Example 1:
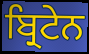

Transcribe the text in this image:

ਬ੍ਰਿਟੇਨ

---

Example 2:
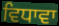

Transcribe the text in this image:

ਵਿਧਾਵਾ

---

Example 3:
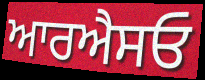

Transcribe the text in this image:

ਆਰਐਸਓ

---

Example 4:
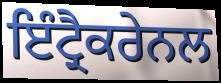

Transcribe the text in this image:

ਇੰਟ੍ਰੈਕਰੇਨਲ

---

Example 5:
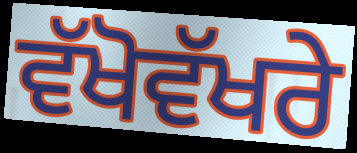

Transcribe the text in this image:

ਵੱਖੋਵੱਖਰੇ